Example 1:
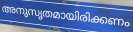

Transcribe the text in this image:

അനുസൃതമായിരിക്കണം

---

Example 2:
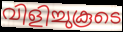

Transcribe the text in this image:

വിളിച്ചുകൂടെ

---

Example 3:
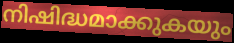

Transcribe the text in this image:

നിഷിദ്ധമാക്കുകയും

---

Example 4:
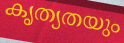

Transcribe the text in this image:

കൃത്യതയും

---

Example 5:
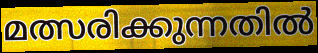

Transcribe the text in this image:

മത്സരിക്കുന്നതിൽ